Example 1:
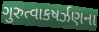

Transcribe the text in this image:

ગુરુત્વાકષર્ઝણના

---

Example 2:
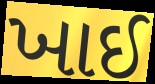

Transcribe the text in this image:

ખાઈ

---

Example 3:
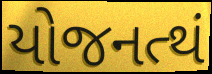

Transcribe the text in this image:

યોજનત્થં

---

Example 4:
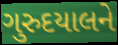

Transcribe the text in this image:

ગુરુદયાલને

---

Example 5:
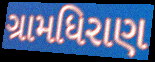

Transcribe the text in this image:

ગ્રામધિરાણ